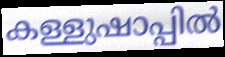
കള്ളുഷാപ്പിൽ